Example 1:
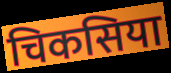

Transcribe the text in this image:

चिकसिया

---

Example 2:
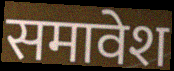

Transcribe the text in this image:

समावेश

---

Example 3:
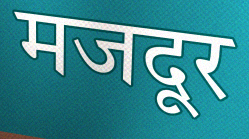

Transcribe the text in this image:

मजदूर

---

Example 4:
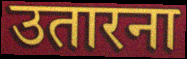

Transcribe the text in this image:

उतारना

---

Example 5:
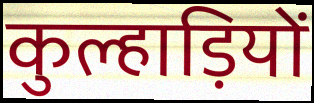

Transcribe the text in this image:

कुल्हाड़ियों